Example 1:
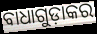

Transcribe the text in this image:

ବାଧାଗୁଡ଼ାକର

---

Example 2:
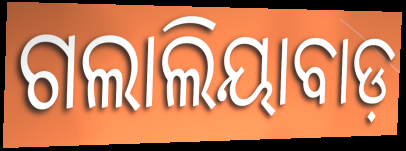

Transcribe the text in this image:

ଗଲାଲିୟାବାଡ଼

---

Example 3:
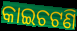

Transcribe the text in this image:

କାଇଚଟଣି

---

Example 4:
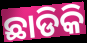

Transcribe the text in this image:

ଛାଡିକି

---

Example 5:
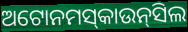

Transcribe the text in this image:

ଅଟୋନମସ୍‌କାଉନ୍‌ସିଲ